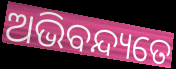
ଅଭିବନ୍ଦ୍ୟତେ